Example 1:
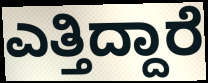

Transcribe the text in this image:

ಎತ್ತಿದ್ದಾರೆ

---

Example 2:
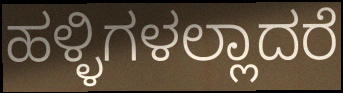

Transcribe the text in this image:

ಹಳ್ಳಿಗಳಲ್ಲಾದರೆ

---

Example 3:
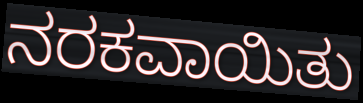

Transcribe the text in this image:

ನರಕವಾಯಿತು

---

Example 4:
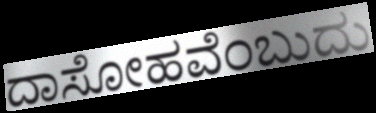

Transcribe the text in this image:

ದಾಸೋಹವೆಂಬುದು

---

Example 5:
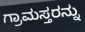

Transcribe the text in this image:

ಗ್ರಾಮಸ್ತರನ್ನು